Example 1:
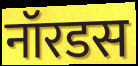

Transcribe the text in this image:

नॉरडस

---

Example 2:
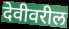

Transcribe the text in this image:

देवीवरील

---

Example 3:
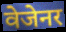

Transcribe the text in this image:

वेजेनर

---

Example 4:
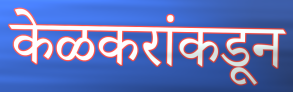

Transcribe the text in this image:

केळकरांकडून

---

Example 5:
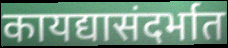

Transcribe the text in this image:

कायद्यासंदर्भात